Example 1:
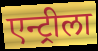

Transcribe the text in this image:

एन्ट्रीला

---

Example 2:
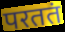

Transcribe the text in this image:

परततं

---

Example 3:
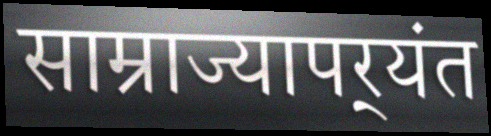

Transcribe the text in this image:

साम्राज्यापर्यंत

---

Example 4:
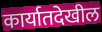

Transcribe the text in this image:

कार्यातदेखील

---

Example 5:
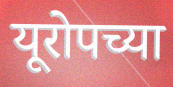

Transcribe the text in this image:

यूरोपच्या